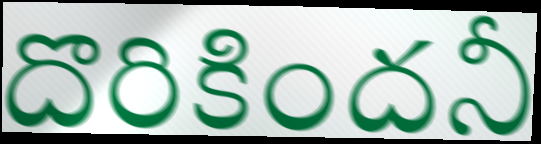
దొరికిందనీ